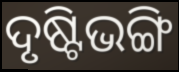
ଦୃଷ୍ଟିଭଙ୍ଗି